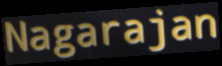
Nagarajan